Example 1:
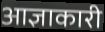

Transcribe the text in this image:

आज्ञाकारी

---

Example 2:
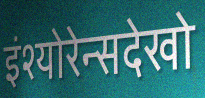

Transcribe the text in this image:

इंश्योरेन्सदेखो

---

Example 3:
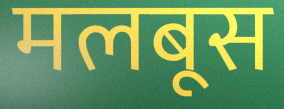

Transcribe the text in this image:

मलबूस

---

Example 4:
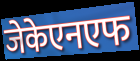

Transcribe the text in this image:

जेकेएनएफ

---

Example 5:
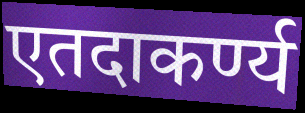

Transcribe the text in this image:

एतदाकर्ण्य